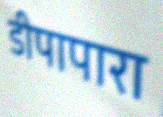
डीपापारा